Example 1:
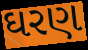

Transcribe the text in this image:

ઘરણ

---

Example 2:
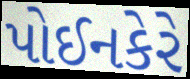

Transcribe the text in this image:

પોઈનકેરે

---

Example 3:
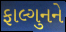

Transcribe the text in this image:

ફાલ્ગુનને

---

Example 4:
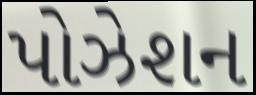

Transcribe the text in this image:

પોઝેશન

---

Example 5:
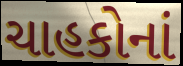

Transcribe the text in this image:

ચાહકોનાં